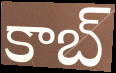
కాబ్